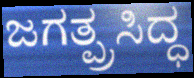
ಜಗತ್ಪ್ರಸಿದ್ಧ